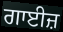
ਗਾਈਜ਼